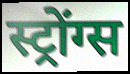
स्ट्रोंग्स